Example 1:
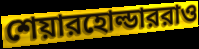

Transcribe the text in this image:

শেয়ারহোল্ডাররাও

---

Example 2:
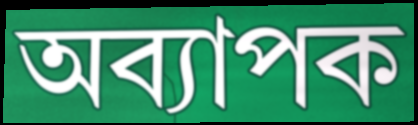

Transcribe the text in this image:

অব্যাপক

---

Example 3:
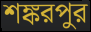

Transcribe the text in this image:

শঙ্করপুর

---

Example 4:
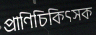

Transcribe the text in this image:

প্রাণিচিকিৎসক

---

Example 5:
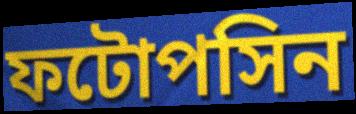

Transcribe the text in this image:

ফটোপসিন